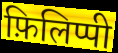
फ़िलिप्पी